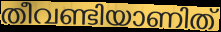
തീവണ്ടിയാണിത്